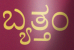
ಬ್ಯತ್ತಂ